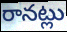
రానట్లు